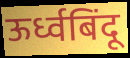
ऊर्ध्वबिंदू